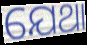
ଯେଥା